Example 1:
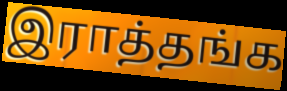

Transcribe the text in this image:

இராத்தங்க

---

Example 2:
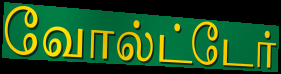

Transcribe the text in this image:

வோல்ட்டேர்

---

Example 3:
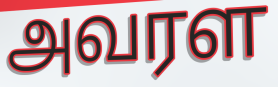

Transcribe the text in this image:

அவரள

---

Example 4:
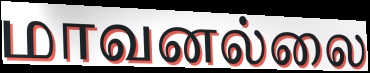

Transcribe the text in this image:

மாவனல்லை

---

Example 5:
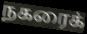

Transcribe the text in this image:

நகரைக்